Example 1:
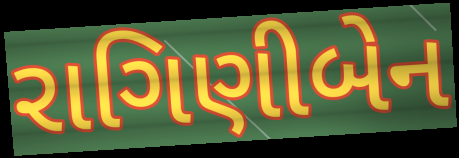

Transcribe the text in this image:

રાગિણીબેન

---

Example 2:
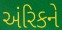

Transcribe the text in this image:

અંરિકને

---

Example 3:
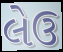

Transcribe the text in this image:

લેઉ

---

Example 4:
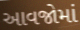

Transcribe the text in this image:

આવજોમાં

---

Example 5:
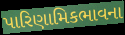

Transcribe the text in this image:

પારિણામિકભાવના